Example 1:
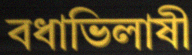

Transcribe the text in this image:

বধাভিলাষী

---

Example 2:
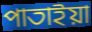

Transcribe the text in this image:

পাতাইয়া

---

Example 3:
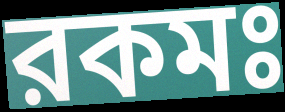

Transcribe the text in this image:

রকমঃ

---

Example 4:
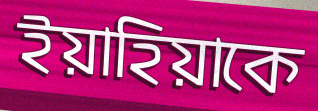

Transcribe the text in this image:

ইয়াহিয়াকে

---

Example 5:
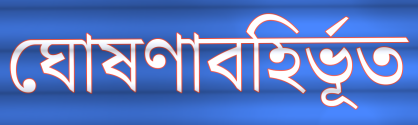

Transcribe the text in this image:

ঘোষণাবহির্ভূত